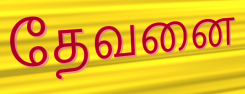
தேவனை